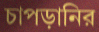
চাপড়ানির